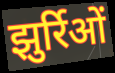
झुर्रिओं